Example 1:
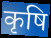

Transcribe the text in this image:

कृषि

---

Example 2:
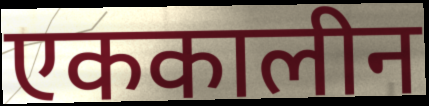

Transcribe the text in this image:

एककालीन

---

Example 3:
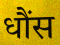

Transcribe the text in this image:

धौंस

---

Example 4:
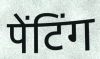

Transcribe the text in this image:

पेंटिंग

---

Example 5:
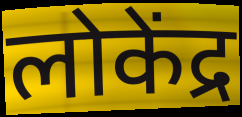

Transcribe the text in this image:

लोकेंद्र